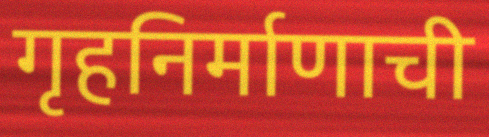
गृहनिर्माणाची